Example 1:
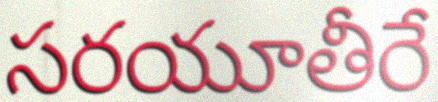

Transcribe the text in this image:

సరయూతీరే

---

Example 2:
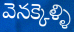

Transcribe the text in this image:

వెనక్కెళ్ళి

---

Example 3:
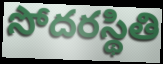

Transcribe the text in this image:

సోదరస్థితి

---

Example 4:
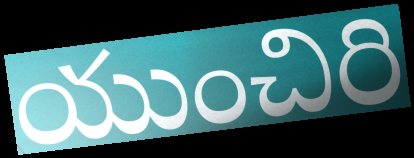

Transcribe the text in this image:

యుంచిరి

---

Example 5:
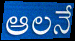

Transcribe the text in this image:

ఆలనే